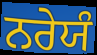
ਨਰੇਯੰ